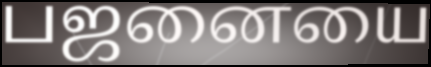
பஜனையை